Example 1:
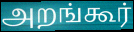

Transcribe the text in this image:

அறங்கூர்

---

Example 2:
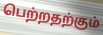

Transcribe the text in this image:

பெற்றதற்கும்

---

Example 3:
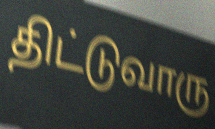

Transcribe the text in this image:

திட்டுவாரு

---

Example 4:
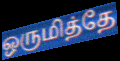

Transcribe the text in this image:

ஒருமித்தே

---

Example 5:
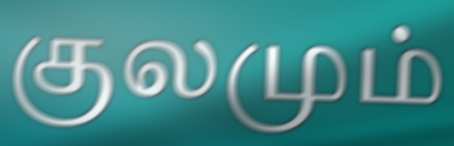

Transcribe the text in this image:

குலமும்